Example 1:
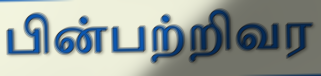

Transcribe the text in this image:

பின்பற்றிவர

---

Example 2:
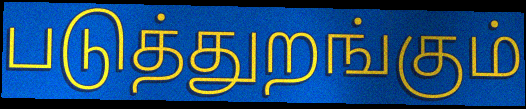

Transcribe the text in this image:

படுத்துறங்கும்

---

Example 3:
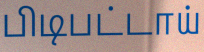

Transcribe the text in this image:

பிடிபட்டாய்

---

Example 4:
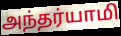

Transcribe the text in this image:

அந்தர்யாமி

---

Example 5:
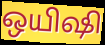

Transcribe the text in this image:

ஒயிஷி